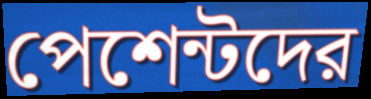
পেশেন্টদের